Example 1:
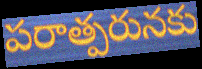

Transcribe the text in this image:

పరాత్పరునకు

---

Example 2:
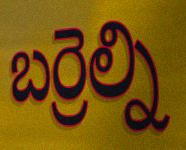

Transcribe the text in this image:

బర్రెల్ని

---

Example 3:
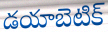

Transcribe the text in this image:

డయాబెటిక్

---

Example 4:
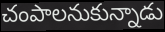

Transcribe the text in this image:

చంపాలనుకున్నాడు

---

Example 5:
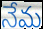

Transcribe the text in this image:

నేమ